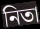
নিতা